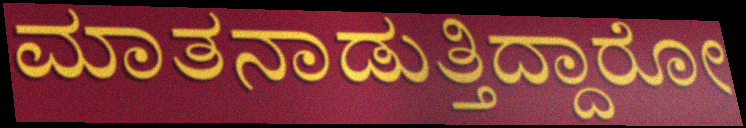
ಮಾತನಾಡುತ್ತಿದ್ದಾರೋ